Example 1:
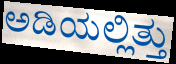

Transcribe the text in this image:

ಅಡಿಯಲ್ಲಿತ್ತು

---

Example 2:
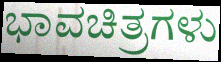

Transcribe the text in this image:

ಭಾವಚಿತ್ರಗಳು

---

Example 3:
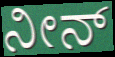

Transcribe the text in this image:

ನೀನ್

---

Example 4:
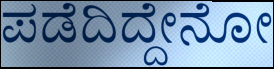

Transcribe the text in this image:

ಪಡೆದಿದ್ದೇನೋ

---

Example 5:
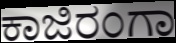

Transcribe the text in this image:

ಕಾಜಿರಂಗಾ